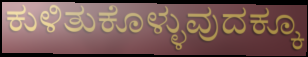
ಕುಳಿತುಕೊಳ್ಳುವುದಕ್ಕೂ